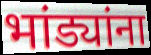
भांड्यांना